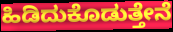
ಹಿಡಿದುಕೊಡುತ್ತೇನೆ